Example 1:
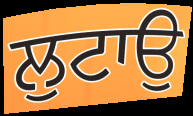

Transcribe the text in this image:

ਲੁਟਾਉ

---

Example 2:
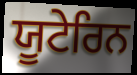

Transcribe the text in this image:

ਯੂਟੇਰਿਨ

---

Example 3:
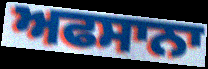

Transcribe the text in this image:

ਅਫਸਾਨਾ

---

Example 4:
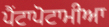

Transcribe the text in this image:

ਪੈਂਟਾਪੋਟਾਮੀਆ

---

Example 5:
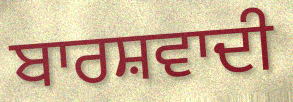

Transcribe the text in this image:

ਬਾਰਸ਼ਵਾਦੀ